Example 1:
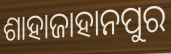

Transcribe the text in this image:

ଶାହାଜାହାନପୁର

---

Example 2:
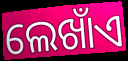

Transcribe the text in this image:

ଲେଖାଁଏ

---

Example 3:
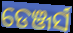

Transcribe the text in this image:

ଡେଞ୍ଜର୍ସ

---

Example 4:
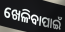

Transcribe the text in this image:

ଖେଳିବାପାଇଁ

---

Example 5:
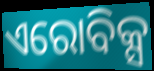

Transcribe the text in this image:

ଏରୋବିକ୍ସ